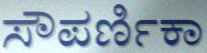
ಸೌಪರ್ಣಿಕಾ